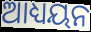
ଆଧ୍ୟୟନ